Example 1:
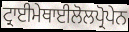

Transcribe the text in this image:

ਟ੍ਰਾਈਮੇਥਾਈਲੋਲਪ੍ਰੋਪੇਨ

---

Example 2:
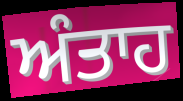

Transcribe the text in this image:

ਅੰਤਾਹ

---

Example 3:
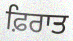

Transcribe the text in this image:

ਫ਼ਿਰਾਤ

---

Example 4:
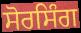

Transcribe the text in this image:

ਸੋਰਸਿੰਗ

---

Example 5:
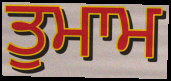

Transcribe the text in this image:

ਤੁਮਾਮ